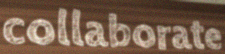
collaborate